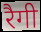
रैगी